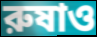
রুষাও